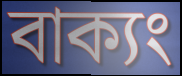
বাক্যং